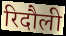
रिदौली